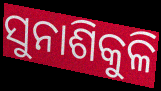
ସୁନାଶିକୁଳି